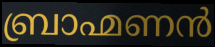
ബ്രാഹ്മണൻ